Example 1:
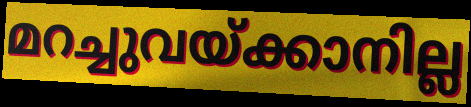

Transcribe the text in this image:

മറച്ചുവയ്ക്കാനില്ല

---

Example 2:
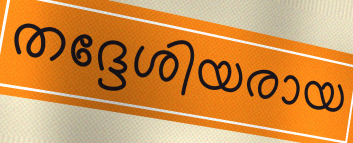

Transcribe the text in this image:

തദ്ദേശിയരായ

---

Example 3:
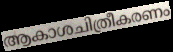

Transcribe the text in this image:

ആകാശചിത്രീകരണം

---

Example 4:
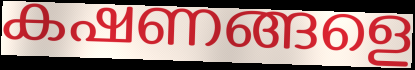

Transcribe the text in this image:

കഷണങ്ങളെ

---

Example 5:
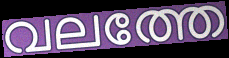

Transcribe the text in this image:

വലത്തേ